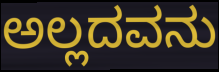
ಅಲ್ಲದವನು